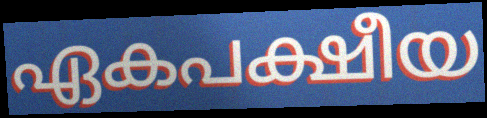
ഏകപക്ഷീയ